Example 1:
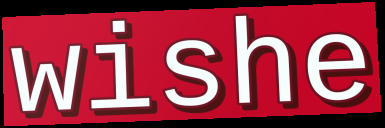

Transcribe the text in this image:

wishe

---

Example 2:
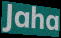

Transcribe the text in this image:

Jaha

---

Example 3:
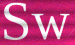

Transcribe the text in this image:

Sw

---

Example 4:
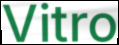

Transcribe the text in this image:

Vitro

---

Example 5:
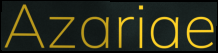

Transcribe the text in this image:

Azariae